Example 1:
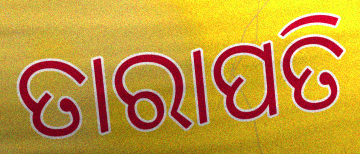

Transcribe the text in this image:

ତାରାପତି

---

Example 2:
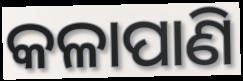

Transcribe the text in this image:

କଳାପାଣି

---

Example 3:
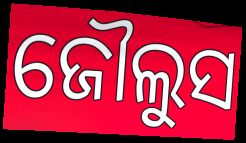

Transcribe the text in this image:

ଜୌଲୁସ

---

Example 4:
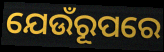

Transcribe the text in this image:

ଯେଉଁରୂପରେ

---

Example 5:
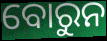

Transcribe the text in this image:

ବୋରୁନ